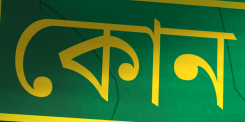
কোন